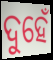
ଦୁହେଁ